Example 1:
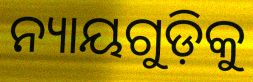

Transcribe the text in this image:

ନ୍ୟାୟଗୁଡ଼ିକୁ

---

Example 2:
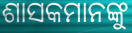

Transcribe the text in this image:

ଶାସକମାନଙ୍କୁ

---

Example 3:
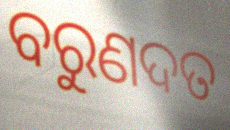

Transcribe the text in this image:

ବରୁଣଦତ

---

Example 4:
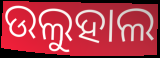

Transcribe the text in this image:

ଉଲୁହାଲ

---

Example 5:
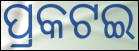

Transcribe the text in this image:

ପ୍ରକଟଇ